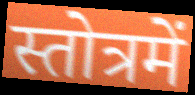
स्तोत्रमें